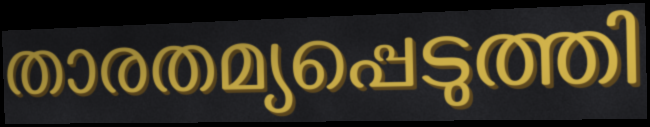
താരതമ്യപ്പെടുത്തി